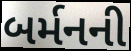
બર્મનની